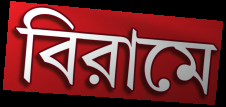
বিরামে